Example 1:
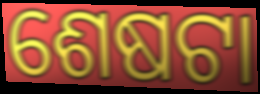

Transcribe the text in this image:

ଶେଷଟା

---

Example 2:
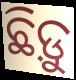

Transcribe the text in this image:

ଛିଡ଼ୁ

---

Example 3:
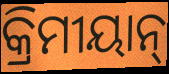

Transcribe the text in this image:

କ୍ରିମୀୟାନ୍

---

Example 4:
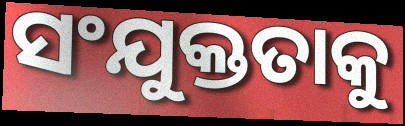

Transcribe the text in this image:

ସଂଯୁକ୍ତତାକୁ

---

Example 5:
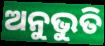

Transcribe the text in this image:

ଅନୁଭୁତି